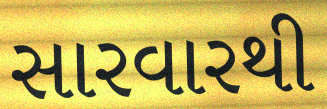
સારવારથી